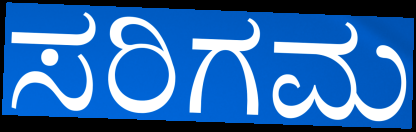
ಸರಿಗಮ